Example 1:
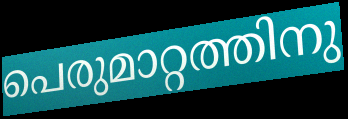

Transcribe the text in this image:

പെരുമാറ്റത്തിനു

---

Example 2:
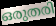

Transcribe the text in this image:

ഒരുതരി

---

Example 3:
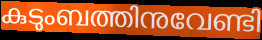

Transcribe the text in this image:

കുടുംബത്തിനുവേണ്ടി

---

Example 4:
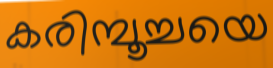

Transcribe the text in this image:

കരിമ്പൂച്ചയെ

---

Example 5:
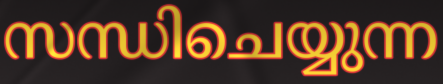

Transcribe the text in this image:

സന്ധിചെയ്യുന്ന